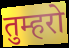
तुम्हरो